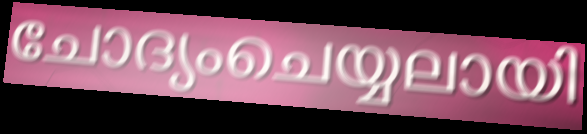
ചോദ്യംചെയ്യലായി